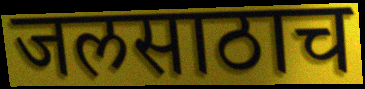
जलसाठाच